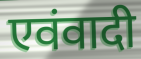
एवंवादी